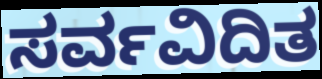
ಸರ್ವವಿದಿತ